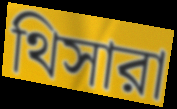
থিসারা